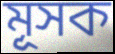
মূসক